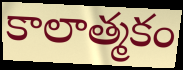
కాలాత్మకం